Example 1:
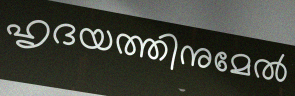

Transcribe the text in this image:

ഹൃദയത്തിനുമേൽ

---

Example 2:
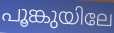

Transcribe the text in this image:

പൂങ്കുയിലേ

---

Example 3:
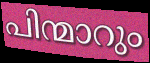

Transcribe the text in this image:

പിന്മാറും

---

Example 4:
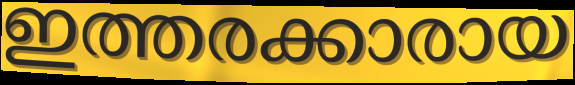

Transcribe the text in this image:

ഇത്തരക്കാരായ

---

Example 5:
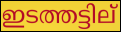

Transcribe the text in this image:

ഇടത്തട്ടില്